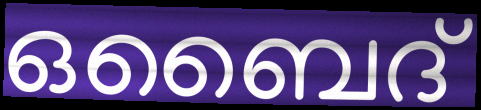
ഒബൈദ്